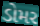
ડોમર